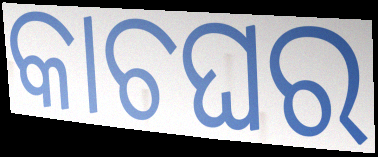
କାଚଘର